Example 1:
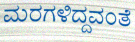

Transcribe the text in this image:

ಮರಗಳಿದ್ದವಂತೆ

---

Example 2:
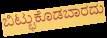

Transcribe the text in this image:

ಬಿಟ್ಟುಕೊಡಬಾರದು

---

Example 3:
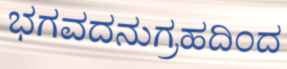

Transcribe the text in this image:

ಭಗವದನುಗ್ರಹದಿಂದ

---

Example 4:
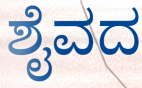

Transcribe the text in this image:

ಶೈವದ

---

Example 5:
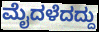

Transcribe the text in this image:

ಮೈದಳೆದದ್ದು